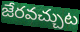
జేరవచ్చుట